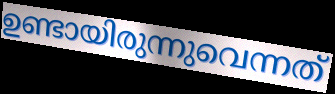
ഉണ്ടായിരുന്നുവെന്നത്